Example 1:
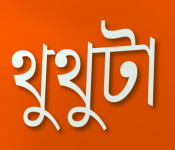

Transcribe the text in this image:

থুথুটা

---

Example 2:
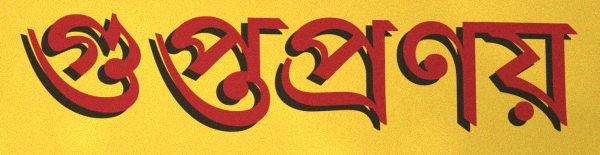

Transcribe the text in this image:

গুপ্তপ্রণয়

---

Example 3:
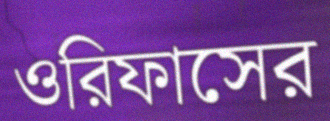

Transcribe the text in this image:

ওরিফাসের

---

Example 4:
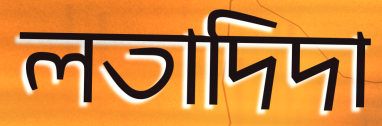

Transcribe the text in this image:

লতাদিদা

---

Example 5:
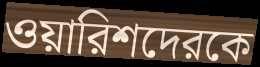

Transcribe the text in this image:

ওয়ারিশদেরকে